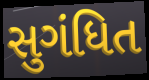
સુગંધિત